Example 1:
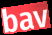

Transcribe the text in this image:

bav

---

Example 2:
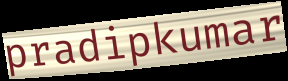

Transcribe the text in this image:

pradipkumar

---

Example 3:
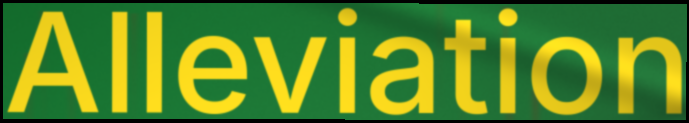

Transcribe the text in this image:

Alleviation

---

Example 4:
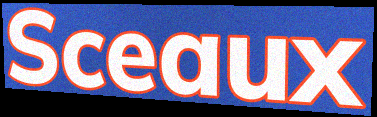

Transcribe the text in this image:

Sceaux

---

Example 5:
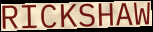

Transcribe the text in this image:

RICKSHAW